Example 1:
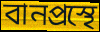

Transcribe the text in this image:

বানপ্রস্থে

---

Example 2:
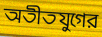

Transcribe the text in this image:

অতীতযুগের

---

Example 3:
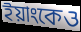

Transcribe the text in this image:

ইয়াংকেও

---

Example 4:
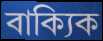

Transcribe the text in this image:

বাক্যিক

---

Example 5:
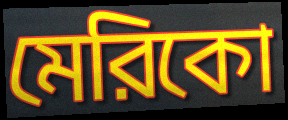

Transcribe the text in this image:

মেরিকো